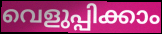
വെളുപ്പിക്കാം